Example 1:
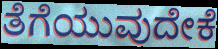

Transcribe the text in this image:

ತೆಗೆಯುವುದೇಕೆ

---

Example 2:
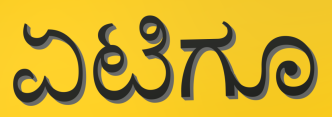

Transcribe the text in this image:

ಏಟಿಗೂ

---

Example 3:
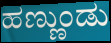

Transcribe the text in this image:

ಹಣ್ಣುಂಡು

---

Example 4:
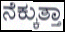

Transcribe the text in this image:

ನೆಕ್ಕುತ್ತಾ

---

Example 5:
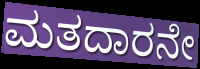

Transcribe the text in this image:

ಮತದಾರನೇ